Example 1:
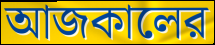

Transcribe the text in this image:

আজকালের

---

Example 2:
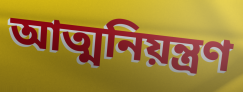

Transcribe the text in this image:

আত্মনিয়ন্ত্রণ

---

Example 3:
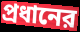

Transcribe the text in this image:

প্রধানের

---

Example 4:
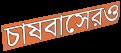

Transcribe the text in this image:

চাষবাসেরও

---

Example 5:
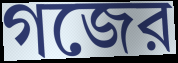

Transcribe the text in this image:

গজের